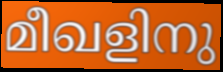
മീഖളിനു